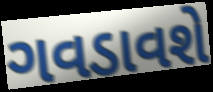
ગવડાવશે